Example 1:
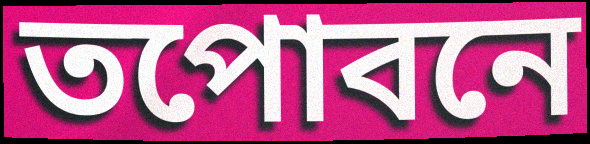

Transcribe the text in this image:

তপোবনে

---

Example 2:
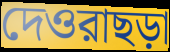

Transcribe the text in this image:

দেওরাছড়া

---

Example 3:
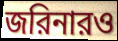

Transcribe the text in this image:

জরিনারও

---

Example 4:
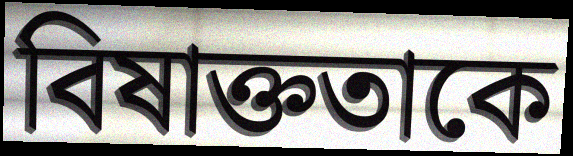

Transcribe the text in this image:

বিষাক্ততাকে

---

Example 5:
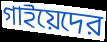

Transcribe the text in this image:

গাইয়েদের